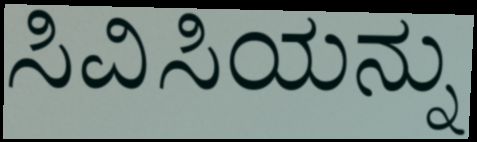
ಸಿವಿಸಿಯನ್ನು